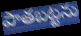
పాతబట్టను